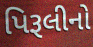
પિરૂલીનો